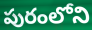
పురంలోని